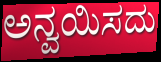
ಅನ್ವಯಿಸದು